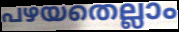
പഴയതെല്ലാം